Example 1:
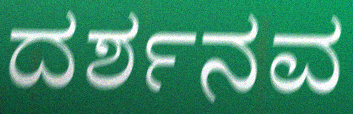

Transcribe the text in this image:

ದರ್ಶನವ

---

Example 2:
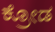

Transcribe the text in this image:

ಕ್ರೋಡ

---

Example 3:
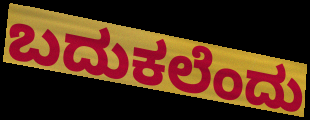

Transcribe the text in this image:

ಬದುಕಲೆಂದು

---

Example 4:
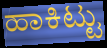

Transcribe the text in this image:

ಹಾಕಿಟ್ಟು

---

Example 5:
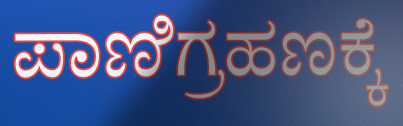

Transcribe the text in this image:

ಪಾಣಿಗ್ರಹಣಕ್ಕೆ